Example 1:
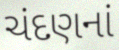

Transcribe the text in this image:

ચંદણનાં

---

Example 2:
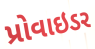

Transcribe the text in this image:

પ્રોવાઇડર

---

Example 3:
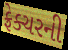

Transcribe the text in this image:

ફ્રેક્ચરની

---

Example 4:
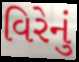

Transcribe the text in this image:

વિરેનું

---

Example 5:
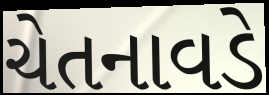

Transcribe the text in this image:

ચેતનાવડે